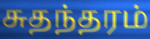
சுதந்தரம்